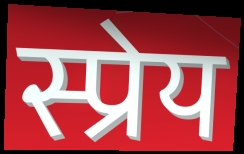
स्प्रेय